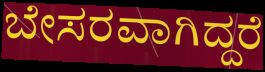
ಬೇಸರವಾಗಿದ್ದರೆ